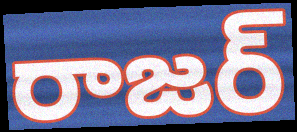
రాజర్